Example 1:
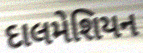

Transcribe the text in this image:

દાલમેશિયન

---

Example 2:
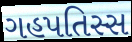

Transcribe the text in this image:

ગહપતિસ્સ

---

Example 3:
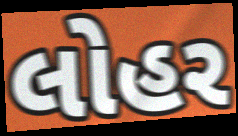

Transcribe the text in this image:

લોહર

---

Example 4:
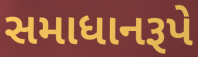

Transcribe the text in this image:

સમાધાનરૂપે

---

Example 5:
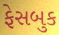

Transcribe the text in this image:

ફેસબુક